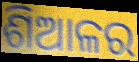
ଶିଆଳର